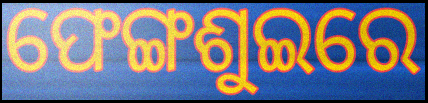
ଫେଙ୍ଗଶୁଇରେ